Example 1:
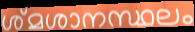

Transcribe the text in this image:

ശ്മശാനസ്ഥലം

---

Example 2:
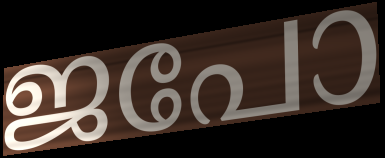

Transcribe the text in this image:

ജപോ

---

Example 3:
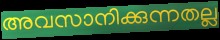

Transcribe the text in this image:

അവസാനിക്കുന്നതല്ല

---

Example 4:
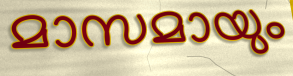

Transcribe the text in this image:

മാസമായും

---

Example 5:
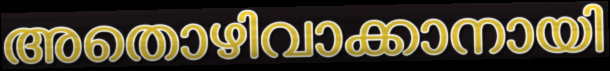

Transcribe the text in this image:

അതൊഴിവാക്കാനായി